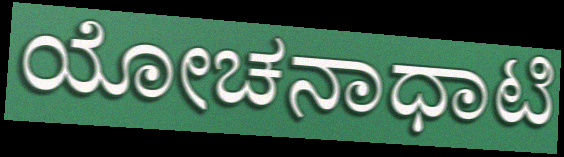
ಯೋಚನಾಧಾಟಿ